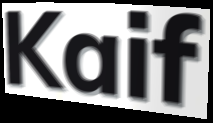
Kaif